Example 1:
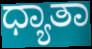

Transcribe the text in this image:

ಧ್ಯಾತಾ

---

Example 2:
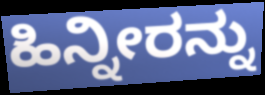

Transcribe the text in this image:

ಹಿನ್ನೀರನ್ನು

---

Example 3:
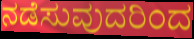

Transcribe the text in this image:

ನಡೆಸುವುದರಿಂದ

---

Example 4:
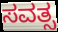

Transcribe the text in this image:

ಸವತ್ಸ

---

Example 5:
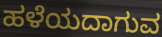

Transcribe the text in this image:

ಹಳೆಯದಾಗುವ